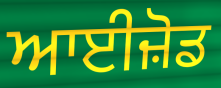
ਆਈਜ਼ੋਡ